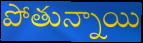
పోతున్నాయి